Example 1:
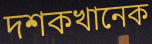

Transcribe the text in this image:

দশকখানেক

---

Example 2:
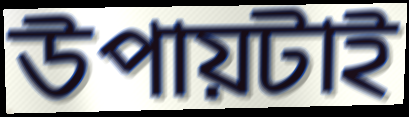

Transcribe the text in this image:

উপায়টাই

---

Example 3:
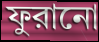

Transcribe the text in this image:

ফুরানো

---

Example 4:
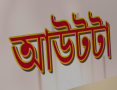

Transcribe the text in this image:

আউটটা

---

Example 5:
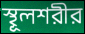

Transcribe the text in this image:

স্থূলশরীর